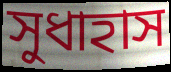
সুধাহাস